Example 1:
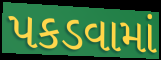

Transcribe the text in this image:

પકડવામાં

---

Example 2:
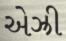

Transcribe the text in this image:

એઝ્રી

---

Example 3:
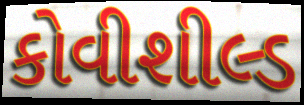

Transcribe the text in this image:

કોવીશીલ્ડ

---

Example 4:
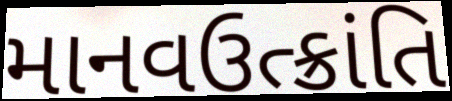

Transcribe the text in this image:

માનવઉત્ક્રાંતિ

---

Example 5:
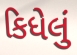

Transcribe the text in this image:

કિધેલું